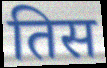
तिस